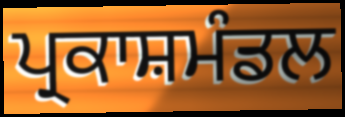
ਪ੍ਰਕਾਸ਼ਮੰਡਲ